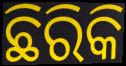
ଛିରିକି